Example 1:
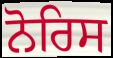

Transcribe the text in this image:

ਨੋਰਿਸ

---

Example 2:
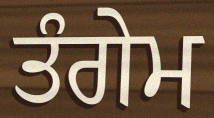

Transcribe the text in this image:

ਤੰਗੇਮ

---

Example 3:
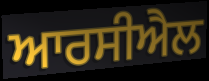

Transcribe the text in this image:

ਆਰਸੀਐਲ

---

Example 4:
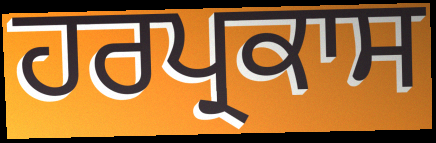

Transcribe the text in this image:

ਹਰਪ੍ਰਕਾਸ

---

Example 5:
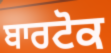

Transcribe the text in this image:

ਬਾਰਟੋਕ